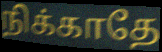
நிக்காதே